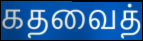
கதவைத்